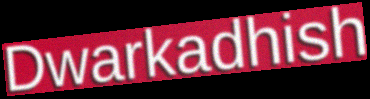
Dwarkadhish